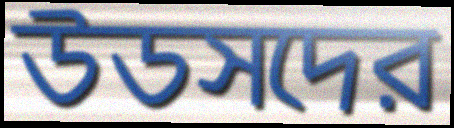
উডসদের